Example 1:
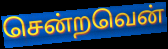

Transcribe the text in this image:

சென்றவென்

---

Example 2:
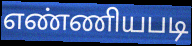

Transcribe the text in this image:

எண்ணியபடி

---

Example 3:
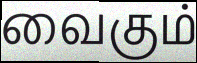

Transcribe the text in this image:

வைகும்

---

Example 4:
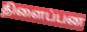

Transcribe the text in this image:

திளைப்பன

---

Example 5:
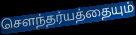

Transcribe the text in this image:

சௌந்தர்யத்தையும்